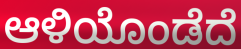
ಆಳಿಯೊಂಡೆದೆ